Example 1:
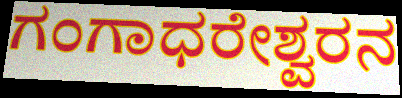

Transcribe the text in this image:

ಗಂಗಾಧರೇಶ್ವರನ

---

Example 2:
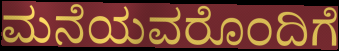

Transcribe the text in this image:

ಮನೆಯವರೊಂದಿಗೆ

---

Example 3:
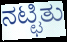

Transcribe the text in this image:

ನಟ್ಟಿತು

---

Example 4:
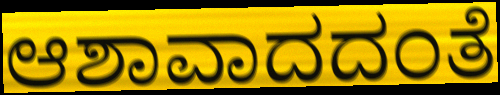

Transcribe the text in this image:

ಆಶಾವಾದದಂತೆ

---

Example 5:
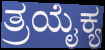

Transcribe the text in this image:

ತ್ರಯೈಕ್ಯ